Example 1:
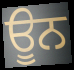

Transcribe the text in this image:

ਊਨ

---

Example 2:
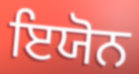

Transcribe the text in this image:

ਇਯੋਨ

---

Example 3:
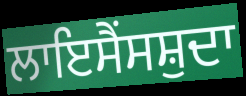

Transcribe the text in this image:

ਲਾਇਸੈਂਸਸ਼ੁਦਾ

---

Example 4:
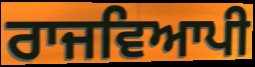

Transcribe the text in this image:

ਰਾਜਵਿਆਪੀ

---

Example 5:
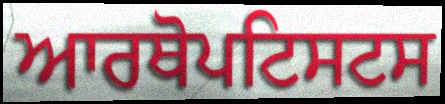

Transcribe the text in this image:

ਆਰਥੋਪਟਿਸਟਸ